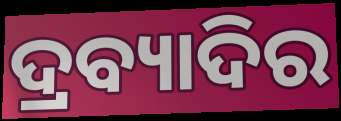
ଦ୍ରବ୍ୟାଦିର